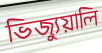
ভিজ্যুয়ালি